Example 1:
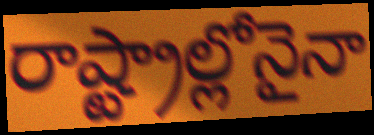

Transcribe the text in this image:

రాష్ట్రాల్లోనైనా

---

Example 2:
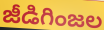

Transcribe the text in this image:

జీడిగింజల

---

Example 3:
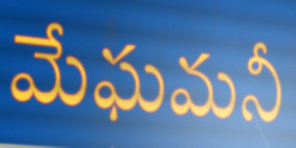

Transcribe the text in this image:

మేఘమనీ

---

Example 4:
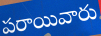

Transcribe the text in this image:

పరాయివారు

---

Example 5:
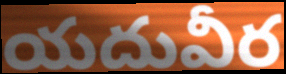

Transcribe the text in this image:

యదువీర